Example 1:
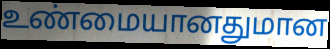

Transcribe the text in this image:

உண்மையானதுமான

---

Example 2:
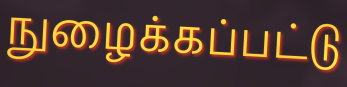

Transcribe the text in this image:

நுழைக்கப்பட்டு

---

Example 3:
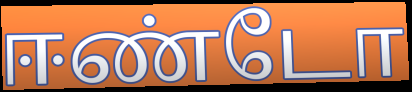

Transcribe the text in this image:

ஈண்டோ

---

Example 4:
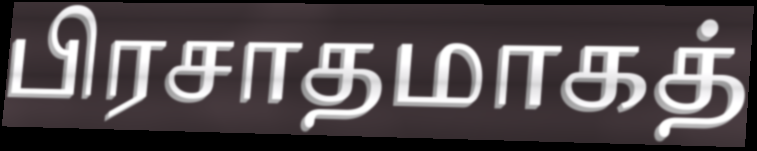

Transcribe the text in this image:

பிரசாதமாகத்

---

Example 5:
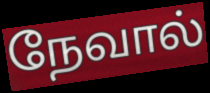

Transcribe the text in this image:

நேவால்